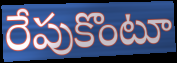
రేపుకొంటూ